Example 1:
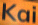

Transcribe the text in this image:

Kai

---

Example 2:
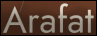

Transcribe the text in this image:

Arafat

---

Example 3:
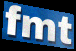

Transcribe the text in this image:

fmt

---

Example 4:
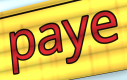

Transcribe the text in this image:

paye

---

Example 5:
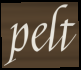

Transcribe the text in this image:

pelt